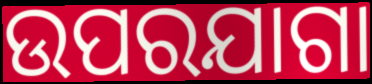
ଉପରଯାଗା